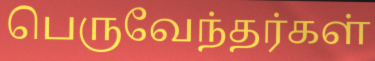
பெருவேந்தர்கள்